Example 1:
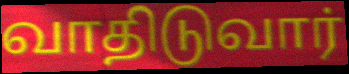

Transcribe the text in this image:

வாதிடுவார்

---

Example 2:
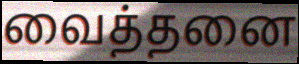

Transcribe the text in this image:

வைத்தனை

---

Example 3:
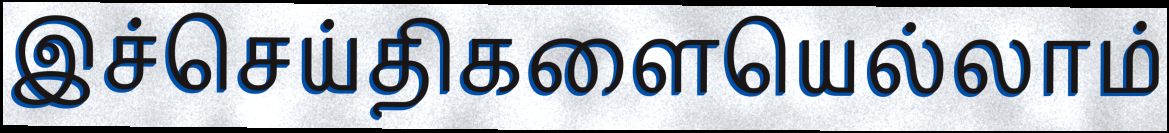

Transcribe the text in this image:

இச்செய்திகளையெல்லாம்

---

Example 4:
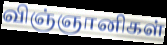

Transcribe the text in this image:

விஞ்ஞானிகள்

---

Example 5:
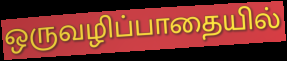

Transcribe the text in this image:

ஒருவழிப்பாதையில்